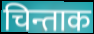
चिन्ताक